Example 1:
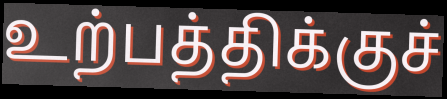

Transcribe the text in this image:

உற்பத்திக்குச்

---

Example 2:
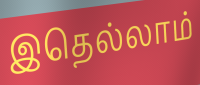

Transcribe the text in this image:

இதெல்லாம்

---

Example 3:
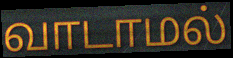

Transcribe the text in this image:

வாடாமல்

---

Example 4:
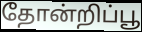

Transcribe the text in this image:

தோன்றிப்பூ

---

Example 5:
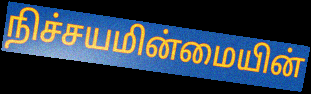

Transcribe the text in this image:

நிச்சயமின்மையின்